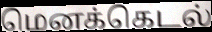
மெனக்கெடல்